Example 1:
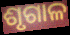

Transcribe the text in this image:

ଶୃଗାଳ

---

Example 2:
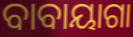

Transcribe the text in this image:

ବାବାୟାଗା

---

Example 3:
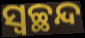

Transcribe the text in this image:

ସ୍ୱଚ୍ଛନ୍ଦ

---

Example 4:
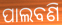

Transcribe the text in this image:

ପାଲବଣି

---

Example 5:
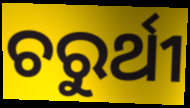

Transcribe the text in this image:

ଚରୁର୍ଥୀ